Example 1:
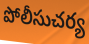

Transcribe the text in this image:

పోలీసుచర్య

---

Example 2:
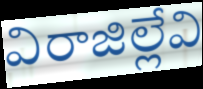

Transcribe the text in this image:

విరాజిల్లేవి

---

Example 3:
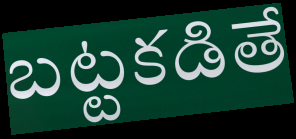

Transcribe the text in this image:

బట్టకడితే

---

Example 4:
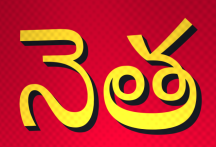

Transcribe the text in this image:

నెత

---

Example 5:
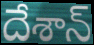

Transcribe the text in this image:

దేశాన్